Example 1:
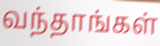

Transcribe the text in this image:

வந்தாங்கள்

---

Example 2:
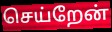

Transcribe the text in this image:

செய்றேன்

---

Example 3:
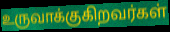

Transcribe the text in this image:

உருவாக்குகிறவர்கள்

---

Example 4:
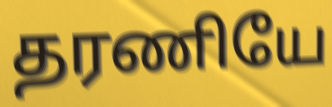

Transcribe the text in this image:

தரணியே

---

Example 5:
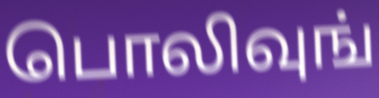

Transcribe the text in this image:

பொலிவுங்